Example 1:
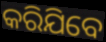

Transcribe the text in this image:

କରିଯିବେ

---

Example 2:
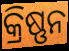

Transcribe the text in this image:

କ୍ରିଷ୍ଣନ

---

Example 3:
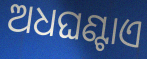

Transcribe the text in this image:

ଅଧଘଣ୍ଟାଏ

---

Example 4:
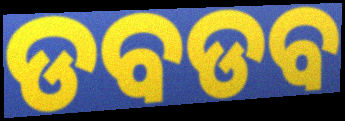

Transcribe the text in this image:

ଡବଡବ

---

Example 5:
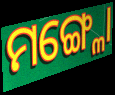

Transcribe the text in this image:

ମଙ୍ଗ୍ଳୋ